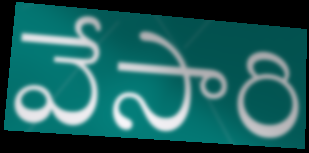
వేసారి